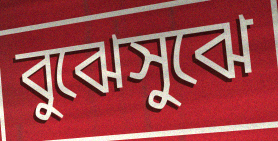
বুঝেসুঝে